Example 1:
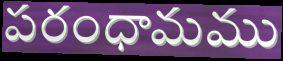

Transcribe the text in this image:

పరంధామము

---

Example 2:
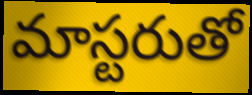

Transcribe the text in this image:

మాస్టరుతో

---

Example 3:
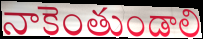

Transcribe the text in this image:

నాకెంతుండాలి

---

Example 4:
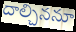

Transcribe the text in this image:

దాల్చిననూ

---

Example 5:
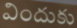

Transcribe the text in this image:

విందుకు